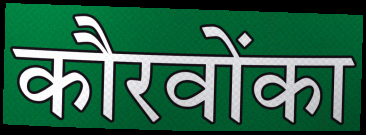
कौरवोंका